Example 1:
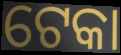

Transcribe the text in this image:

ଟେକା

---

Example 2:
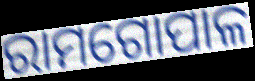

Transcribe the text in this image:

ରାମଗୋପାଳ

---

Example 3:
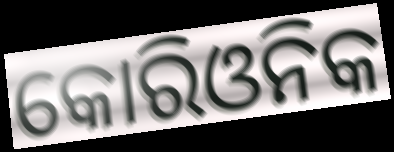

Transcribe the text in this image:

କୋରିଓନିକ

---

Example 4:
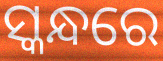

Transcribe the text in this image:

ସ୍କନ୍ଧରେ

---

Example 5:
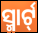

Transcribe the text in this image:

ସ୍ମାର୍ଟ୍